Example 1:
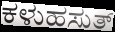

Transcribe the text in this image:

ಕಳುಹಸುತ್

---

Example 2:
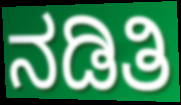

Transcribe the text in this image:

ನಡಿತಿ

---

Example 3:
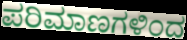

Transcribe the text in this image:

ಪರಿಮಾಣಗಳಿಂದ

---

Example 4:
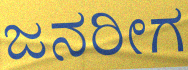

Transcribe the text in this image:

ಜನರೀಗ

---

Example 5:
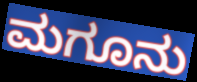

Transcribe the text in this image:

ಮಗೂನು